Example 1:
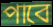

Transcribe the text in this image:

পাবে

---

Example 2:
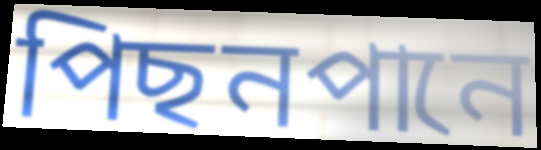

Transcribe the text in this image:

পিছনপানে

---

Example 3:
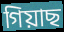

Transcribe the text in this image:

গিয়াছ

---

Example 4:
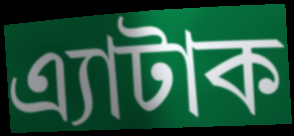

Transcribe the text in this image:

এ্যাটাক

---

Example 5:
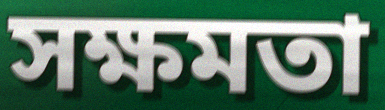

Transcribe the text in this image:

সক্ষমতা